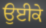
ਉਈਕੇ